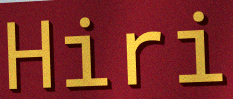
Hiri